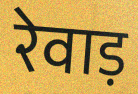
रेवाड़